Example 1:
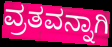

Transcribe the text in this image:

ವ್ರತವನ್ನಾಗಿ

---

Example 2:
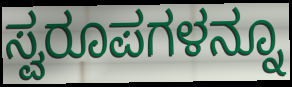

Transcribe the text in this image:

ಸ್ವರೂಪಗಳನ್ನೂ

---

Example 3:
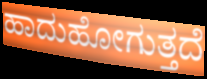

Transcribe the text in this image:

ಹಾದುಹೋಗುತ್ತದೆ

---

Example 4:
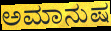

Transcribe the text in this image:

ಅಮಾನುಷ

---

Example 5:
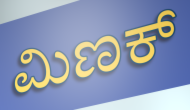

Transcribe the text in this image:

ಮಿಣಕ್